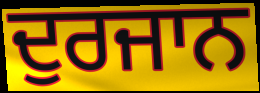
ਦੁਰਜਾਨ